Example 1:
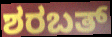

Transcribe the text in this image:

ಶರಬತ್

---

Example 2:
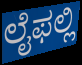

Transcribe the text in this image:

ಲೈಫಲ್ಲಿ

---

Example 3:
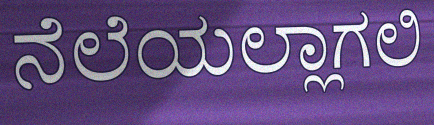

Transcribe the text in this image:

ನೆಲೆಯಲ್ಲಾಗಲಿ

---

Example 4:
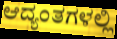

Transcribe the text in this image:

ಆದ್ಯಂತಗಳಲ್ಲಿ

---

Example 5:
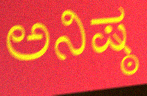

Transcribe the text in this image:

ಅನಿಷ್ಠ